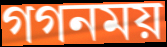
গগনময়